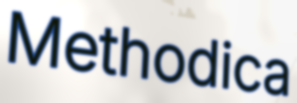
Methodica